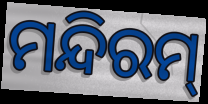
ମନ୍ଦିରମ୍